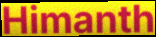
Himanth